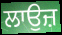
ਲਾਉਜ਼